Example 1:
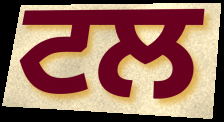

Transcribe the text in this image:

ਟਲ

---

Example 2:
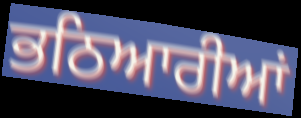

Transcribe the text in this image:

ਭਠਿਆਰੀਆਂ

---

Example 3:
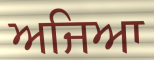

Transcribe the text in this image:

ਅਜਿਆ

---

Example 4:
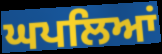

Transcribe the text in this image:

ਘਪਲਿਆਂ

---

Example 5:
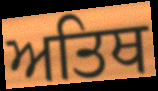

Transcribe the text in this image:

ਅਤਿਥ